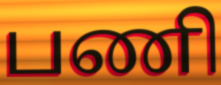
பணி